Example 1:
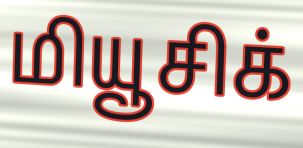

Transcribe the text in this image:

மியூசிக்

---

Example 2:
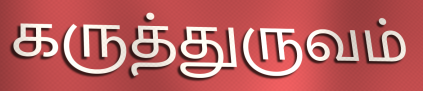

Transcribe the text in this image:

கருத்துருவம்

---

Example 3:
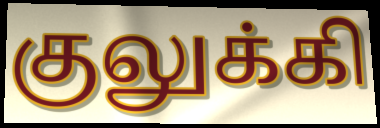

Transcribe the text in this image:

குலுக்கி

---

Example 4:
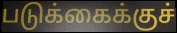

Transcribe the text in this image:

படுக்கைக்குச்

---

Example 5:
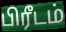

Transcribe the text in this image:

பிரீடம்